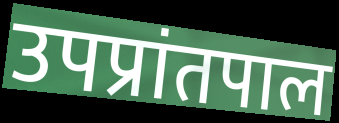
उपप्रांतपाल